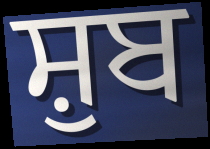
ਸ਼ੁਬ